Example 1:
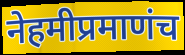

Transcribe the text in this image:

नेहमीप्रमाणंच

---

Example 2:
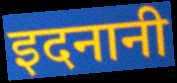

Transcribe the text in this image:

इदनानी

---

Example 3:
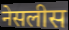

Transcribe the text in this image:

नेसलीस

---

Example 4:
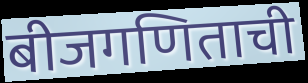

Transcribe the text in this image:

बीजगणिताची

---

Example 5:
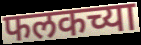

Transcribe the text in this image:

फलकच्या